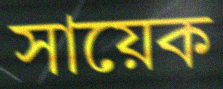
সায়েক